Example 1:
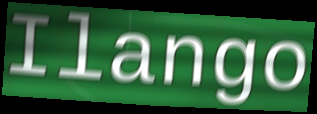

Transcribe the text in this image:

Ilango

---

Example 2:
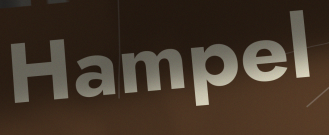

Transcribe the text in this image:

Hampel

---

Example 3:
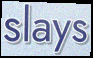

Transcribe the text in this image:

slays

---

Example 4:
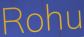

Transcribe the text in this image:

Rohu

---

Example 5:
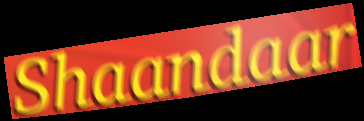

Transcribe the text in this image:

Shaandaar